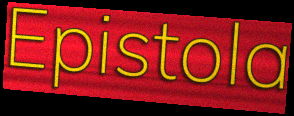
Epistola